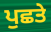
ਪੁਛਤੇ